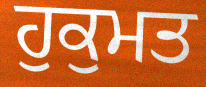
ਹੁਕੁਮਤ